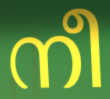
നീ